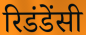
रिडंडेंसी